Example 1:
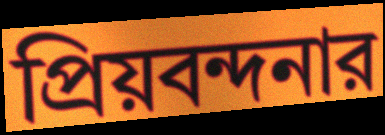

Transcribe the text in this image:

প্রিয়বন্দনার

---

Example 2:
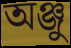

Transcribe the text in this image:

অঞ্জু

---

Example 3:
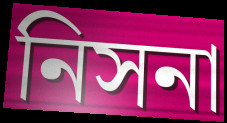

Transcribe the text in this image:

নিসনা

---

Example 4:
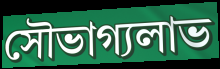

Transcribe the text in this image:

সৌভাগ্যলাভ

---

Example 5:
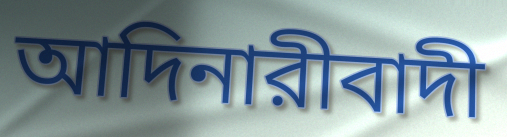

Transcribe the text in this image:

আদিনারীবাদী